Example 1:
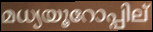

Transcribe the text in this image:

മധ്യയൂറോപ്പില്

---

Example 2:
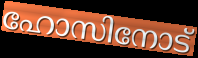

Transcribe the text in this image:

ഹോസിനോട്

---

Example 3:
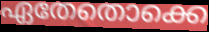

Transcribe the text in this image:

ഏതേതൊക്കെ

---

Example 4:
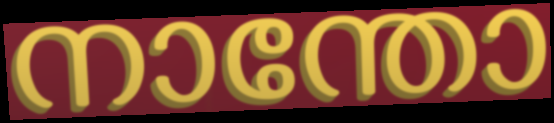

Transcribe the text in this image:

നാന്തോ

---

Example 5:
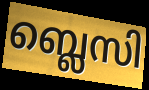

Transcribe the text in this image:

ബ്ലെസി